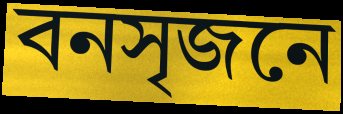
বনসৃজনে